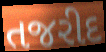
તજરીદ